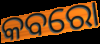
କବରୋ